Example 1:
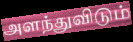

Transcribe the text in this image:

அளந்துவிடும்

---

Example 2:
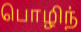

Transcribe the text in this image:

பொழிந்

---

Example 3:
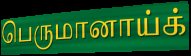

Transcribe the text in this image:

பெருமானாய்க்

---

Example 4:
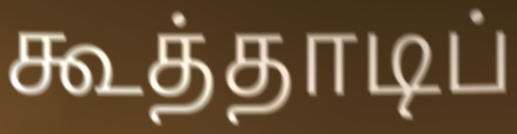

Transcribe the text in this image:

கூத்தாடிப்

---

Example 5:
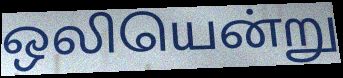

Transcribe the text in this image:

ஒலியென்று